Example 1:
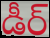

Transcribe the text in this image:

డీర్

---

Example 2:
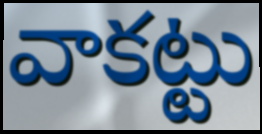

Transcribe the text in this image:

వాకట్టు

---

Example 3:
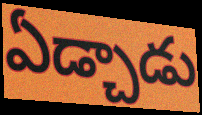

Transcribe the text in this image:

ఏడ్చాడు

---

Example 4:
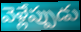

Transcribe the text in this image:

వెళ్లేప్పుడు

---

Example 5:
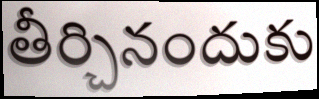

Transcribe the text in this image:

తీర్చినందుకు